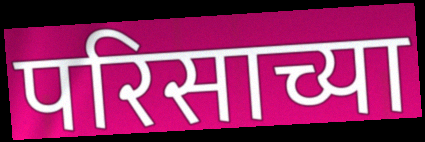
परिसाच्या